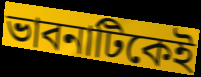
ভাবনাটিকেই